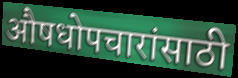
औषधोपचारांसाठी